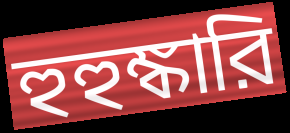
হুহুঙ্কারি